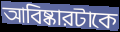
আবিষ্কারটাকে